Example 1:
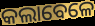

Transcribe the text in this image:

କଲାବେଳେ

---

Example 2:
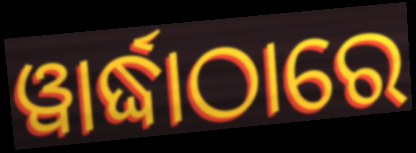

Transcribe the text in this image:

ୱାର୍ଦ୍ଧାଠାରେ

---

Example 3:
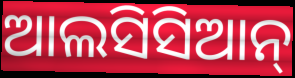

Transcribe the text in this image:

ଆଲସିସିଆନ୍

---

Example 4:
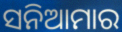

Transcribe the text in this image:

ସନିଆମାର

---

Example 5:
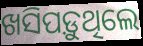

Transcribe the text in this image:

ଖସିପଡ଼ୁଥିଲେ